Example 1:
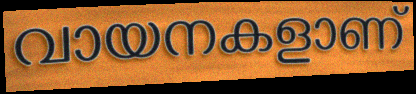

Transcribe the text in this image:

വായനകളാണ്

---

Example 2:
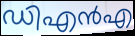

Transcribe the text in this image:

ഡിഎൻഎ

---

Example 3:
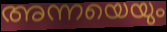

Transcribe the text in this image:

അന്നയെയും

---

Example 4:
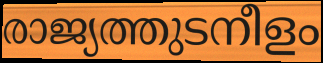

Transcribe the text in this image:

രാജ്യത്തുടനീളം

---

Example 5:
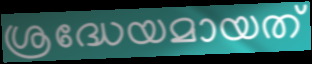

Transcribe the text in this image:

ശ്രദ്ധേയമായത്